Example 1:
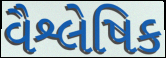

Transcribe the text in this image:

વૈશ્લેષિક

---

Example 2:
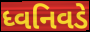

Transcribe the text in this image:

ધ્વનિવડે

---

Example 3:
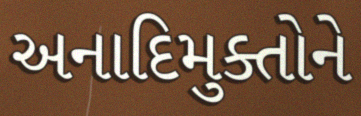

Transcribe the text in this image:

અનાદિમુક્તોને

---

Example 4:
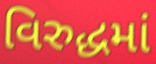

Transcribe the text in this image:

વિરુદ્ધમાં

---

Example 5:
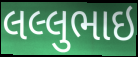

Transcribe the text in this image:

લલ્લુભાઇ